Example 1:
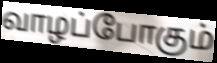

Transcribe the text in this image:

வாழப்போகும்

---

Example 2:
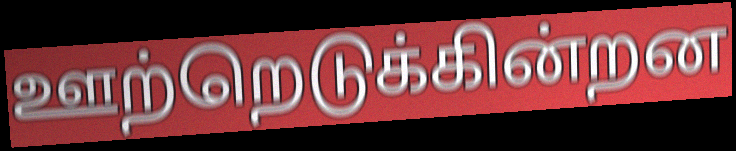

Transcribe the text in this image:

ஊற்றெடுக்கின்றன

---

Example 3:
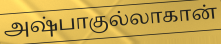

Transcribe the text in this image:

அஷ்பாகுல்லாகான்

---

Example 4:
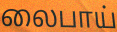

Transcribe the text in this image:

லைபாய்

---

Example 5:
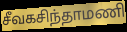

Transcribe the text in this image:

சீவகசிந்தாமணி